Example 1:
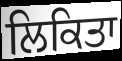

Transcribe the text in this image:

ਲਿਕਿਤਾ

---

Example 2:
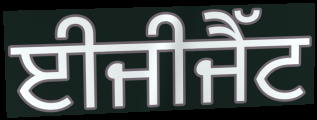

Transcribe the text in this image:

ਈਜੀਜੈੱਟ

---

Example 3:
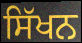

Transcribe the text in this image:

ਸਿੱਖਨ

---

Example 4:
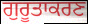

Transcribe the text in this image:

ਗੁਰੂਤਾਕਰਣ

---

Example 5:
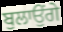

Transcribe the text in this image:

ਬੁਲਾਉਂਗੇ